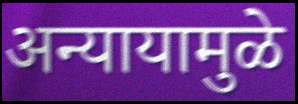
अन्यायामुळे